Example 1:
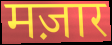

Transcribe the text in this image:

मज़ार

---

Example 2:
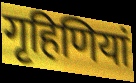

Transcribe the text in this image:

गृहिणियां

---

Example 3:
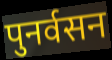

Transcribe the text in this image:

पुनर्वसन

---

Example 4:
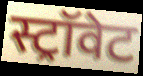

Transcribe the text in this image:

स्ट्रॉवेट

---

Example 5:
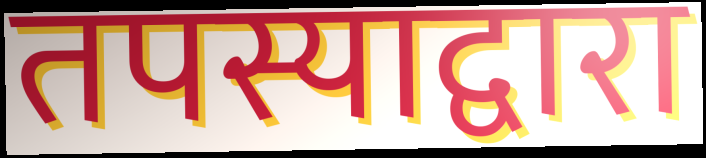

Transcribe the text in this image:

तपस्याद्वारा